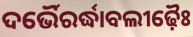
ଦର୍ଭୈରର୍ଦ୍ଧାବଲୀଢ଼ୈଃ